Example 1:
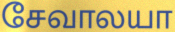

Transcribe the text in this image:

சேவாலயா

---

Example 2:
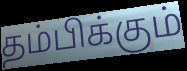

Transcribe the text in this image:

தம்பிக்கும்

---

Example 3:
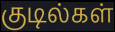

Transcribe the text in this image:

குடில்கள்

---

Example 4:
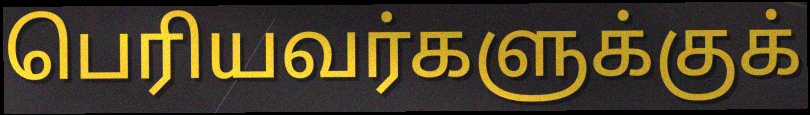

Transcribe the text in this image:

பெரியவர்களுக்குக்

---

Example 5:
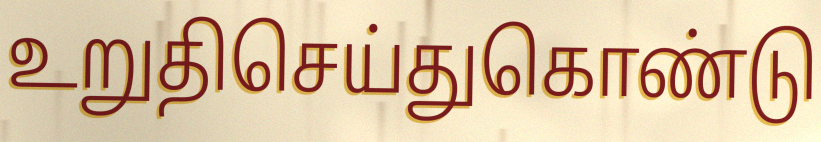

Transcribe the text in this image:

உறுதிசெய்துகொண்டு